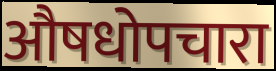
औषधोपचारा